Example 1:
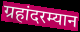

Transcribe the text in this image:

ग्रहांदरम्यान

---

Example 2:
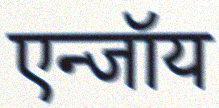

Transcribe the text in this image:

एन्जॉय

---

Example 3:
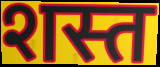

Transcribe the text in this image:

शस्त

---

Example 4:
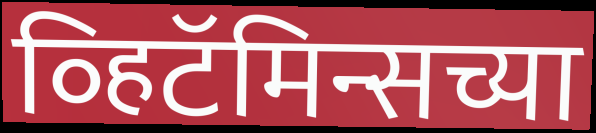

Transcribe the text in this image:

व्हिटॅमिन्सच्या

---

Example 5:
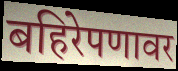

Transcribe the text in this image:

बहिरेपणावर